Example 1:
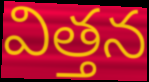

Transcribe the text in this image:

విత్తన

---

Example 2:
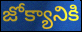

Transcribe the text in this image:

జోక్యానికి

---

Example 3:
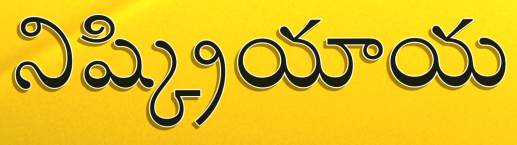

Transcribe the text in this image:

నిష్క్రియాయ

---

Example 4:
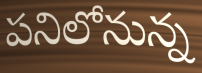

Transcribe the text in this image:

పనిలోనున్న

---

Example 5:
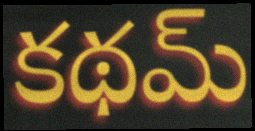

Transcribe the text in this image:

కథమ్